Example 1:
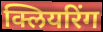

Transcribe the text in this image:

क्लियरिंग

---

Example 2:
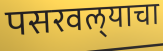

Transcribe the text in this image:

पसरवल्याचा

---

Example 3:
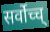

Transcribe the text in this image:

सर्वोच्च्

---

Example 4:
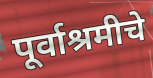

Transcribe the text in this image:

पूर्वाश्रमीचे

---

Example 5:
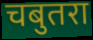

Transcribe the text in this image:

चबुतरा